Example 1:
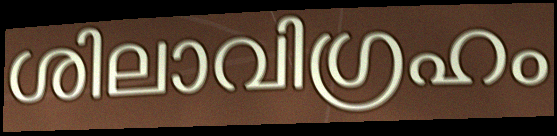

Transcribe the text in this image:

ശിലാവിഗ്രഹം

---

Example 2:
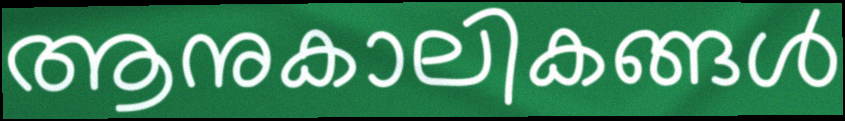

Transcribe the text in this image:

ആനുകാലികങ്ങൾ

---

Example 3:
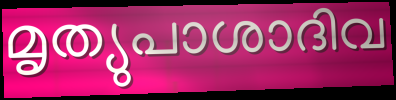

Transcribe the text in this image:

മൃത്യുപാശാദിവ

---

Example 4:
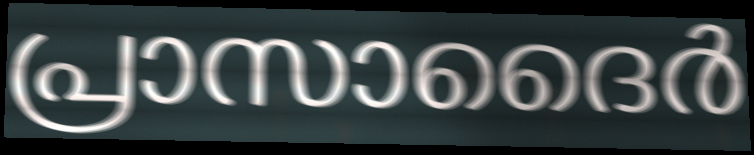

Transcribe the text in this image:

പ്രാസാദൈർ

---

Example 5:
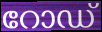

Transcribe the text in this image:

റോഡ്